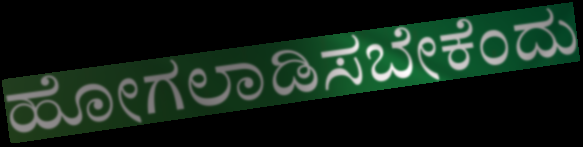
ಹೋಗಲಾಡಿಸಬೇಕೆಂದು